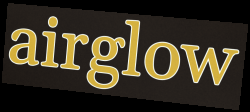
airglow